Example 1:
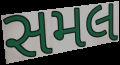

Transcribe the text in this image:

સમલ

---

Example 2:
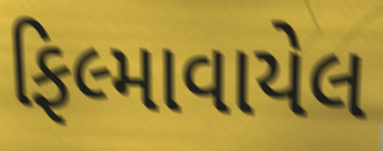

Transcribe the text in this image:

ફિલ્માવાયેલ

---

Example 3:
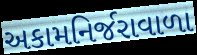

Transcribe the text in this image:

અકામનિર્જરાવાળા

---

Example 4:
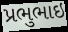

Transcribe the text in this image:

પ્રભુભાઇ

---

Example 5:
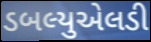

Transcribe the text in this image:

ડબલ્યુએલડી